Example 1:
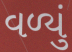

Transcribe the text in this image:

વળ્યું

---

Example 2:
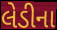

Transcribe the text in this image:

લેડીના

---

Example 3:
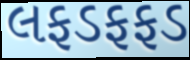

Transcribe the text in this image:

લફડફફડ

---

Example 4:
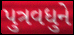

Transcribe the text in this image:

પુત્રવધુને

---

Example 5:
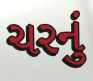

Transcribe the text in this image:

ચરનું